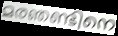
മരഞണ്ടിനെ